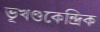
ভূখণ্ডকেন্দ্রিক